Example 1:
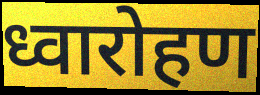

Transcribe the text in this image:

ध्वारोहण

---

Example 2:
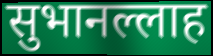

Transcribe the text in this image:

सुभानल्लाह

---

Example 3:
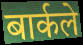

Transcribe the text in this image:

बार्कले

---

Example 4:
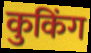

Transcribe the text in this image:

कुकिंग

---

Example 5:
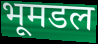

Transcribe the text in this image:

भूमडल